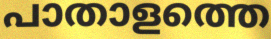
പാതാളത്തെ